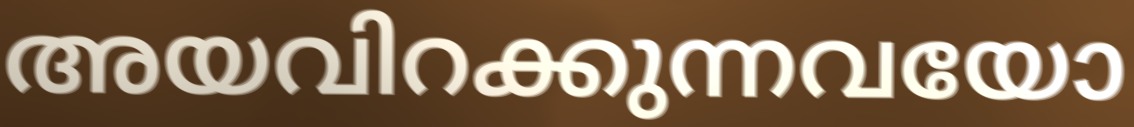
അയവിറക്കുന്നവയോ